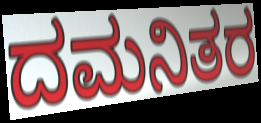
ದಮನಿತರ